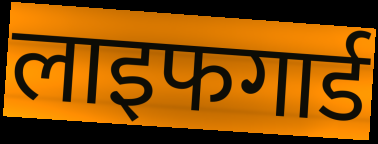
लाइफगार्ड